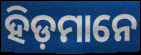
ହିଡ଼ମାନେ